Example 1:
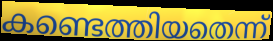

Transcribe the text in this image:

കണ്ടെത്തിയതെന്ന്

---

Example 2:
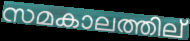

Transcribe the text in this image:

സമകാലത്തില്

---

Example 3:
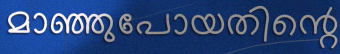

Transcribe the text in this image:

മാഞ്ഞുപോയതിന്റെ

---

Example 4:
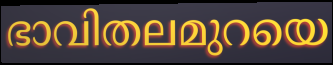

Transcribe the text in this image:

ഭാവിതലമുറയെ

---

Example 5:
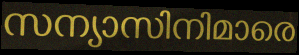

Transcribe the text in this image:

സന്യാസിനിമാരെ